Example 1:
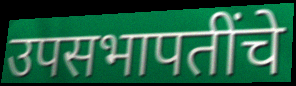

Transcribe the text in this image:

उपसभापतींचे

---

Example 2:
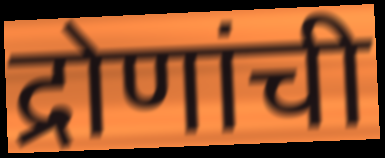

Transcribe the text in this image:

द्रोणांची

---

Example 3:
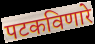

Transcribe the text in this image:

पटकविणारे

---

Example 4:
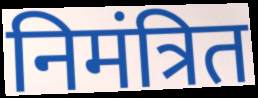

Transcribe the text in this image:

निमंत्रित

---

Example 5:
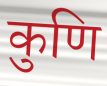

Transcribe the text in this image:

कुणि